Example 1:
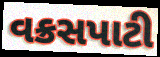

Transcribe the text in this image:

વક્રસપાટી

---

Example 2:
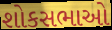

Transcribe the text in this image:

શોકસભાઓ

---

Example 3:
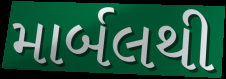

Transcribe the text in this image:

માર્બલથી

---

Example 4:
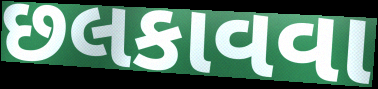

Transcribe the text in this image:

છલકાવવા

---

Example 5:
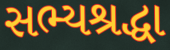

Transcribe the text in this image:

સભ્યશ્રદ્ધા